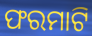
ଫରମାଟି